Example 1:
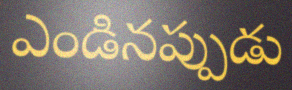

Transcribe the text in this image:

ఎండినప్పుడు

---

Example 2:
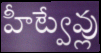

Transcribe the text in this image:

హీట్వేవ్లు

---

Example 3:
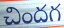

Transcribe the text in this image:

చిందగ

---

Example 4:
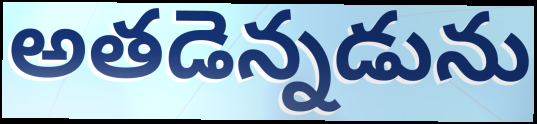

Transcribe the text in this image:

అతడెన్నడును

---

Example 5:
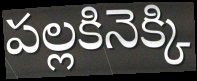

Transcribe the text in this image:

పల్లకినెక్కి